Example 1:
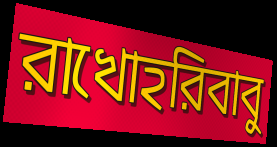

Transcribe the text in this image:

রাখোহরিবাবু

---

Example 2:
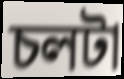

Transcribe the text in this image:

চলটা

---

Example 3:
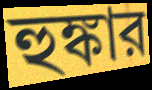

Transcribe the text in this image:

হুঙ্কার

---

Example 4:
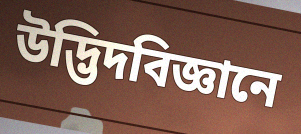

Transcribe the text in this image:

উদ্ভিদবিজ্ঞানে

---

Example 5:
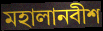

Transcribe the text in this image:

মহালানবীশ